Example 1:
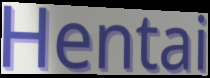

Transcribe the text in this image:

Hentai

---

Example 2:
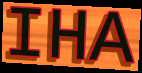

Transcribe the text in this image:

IHA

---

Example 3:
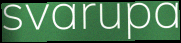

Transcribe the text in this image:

svarupa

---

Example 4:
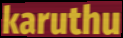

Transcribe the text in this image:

karuthu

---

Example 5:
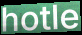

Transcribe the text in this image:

hotle